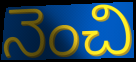
నెంచి